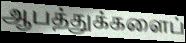
ஆபத்துக்களைப்